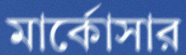
মার্কোসার